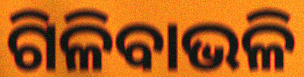
ଗିଳିବାଭଳି